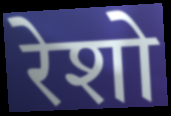
रेशो